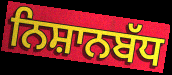
ਨਿਸ਼ਾਨਬੱਧ